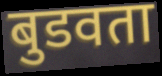
बुडवता